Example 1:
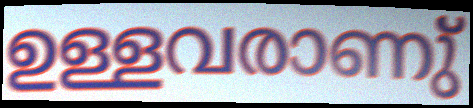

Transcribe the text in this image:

ഉള്ളവരാണു്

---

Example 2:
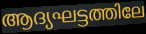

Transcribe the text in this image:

ആദ്യഘട്ടത്തിലേ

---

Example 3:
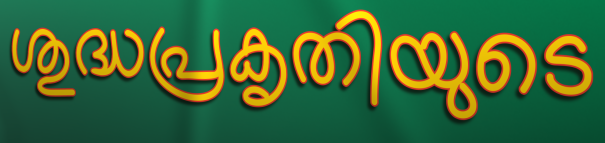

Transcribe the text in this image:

ശുദ്ധപ്രകൃതിയുടെ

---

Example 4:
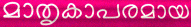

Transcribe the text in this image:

മാതൃകാപരമായ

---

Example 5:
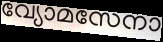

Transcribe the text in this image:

വ്യോമസേനാ